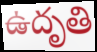
ఉదృతి